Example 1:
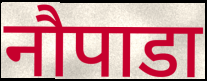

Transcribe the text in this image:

नौपाडा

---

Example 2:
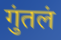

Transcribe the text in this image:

गुंतलं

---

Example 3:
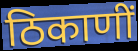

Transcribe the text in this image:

ठिकाणीं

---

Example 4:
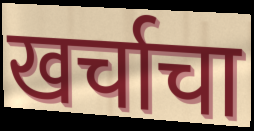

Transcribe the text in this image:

खर्चाचा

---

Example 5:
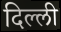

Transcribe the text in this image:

दिल्ली